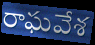
రాఘవేశ